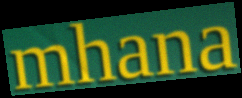
mhana